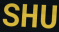
SHU